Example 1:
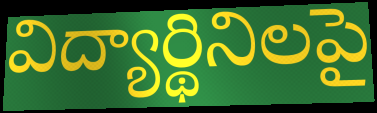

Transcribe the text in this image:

విద్యార్థినిలపై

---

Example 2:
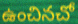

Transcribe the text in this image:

ఉంచినచో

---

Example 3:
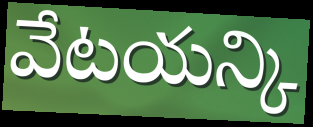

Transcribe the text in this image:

వేటయన్కి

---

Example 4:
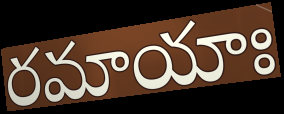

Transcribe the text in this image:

రమాయాః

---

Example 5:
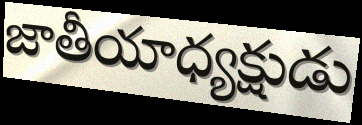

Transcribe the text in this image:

జాతీయాధ్యక్షుడు